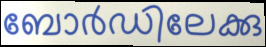
ബോർഡിലേക്കു